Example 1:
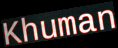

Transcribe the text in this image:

Khuman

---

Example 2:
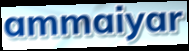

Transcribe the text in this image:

ammaiyar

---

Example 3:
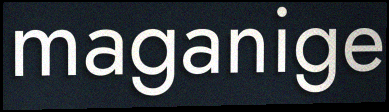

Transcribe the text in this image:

maganige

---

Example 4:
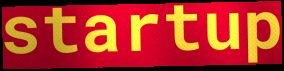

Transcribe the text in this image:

startup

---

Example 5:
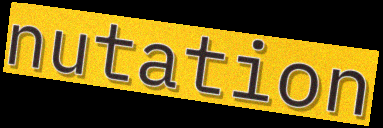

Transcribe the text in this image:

nutation